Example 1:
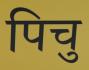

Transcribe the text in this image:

पिचु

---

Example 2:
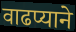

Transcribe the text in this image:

वाढप्याने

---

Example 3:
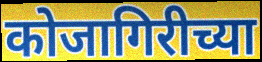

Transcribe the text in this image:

कोजागिरीच्या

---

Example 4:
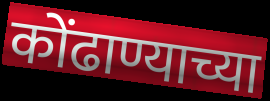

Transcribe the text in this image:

कोंढाण्याच्या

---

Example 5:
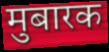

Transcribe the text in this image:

मुबारक